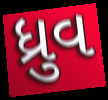
ધ્રુવ